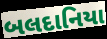
બલદાનિયા